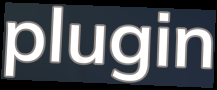
plugin